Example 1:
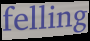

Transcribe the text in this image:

felling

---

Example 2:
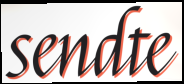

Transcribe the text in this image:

sendte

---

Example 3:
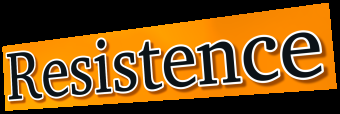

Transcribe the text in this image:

Resistence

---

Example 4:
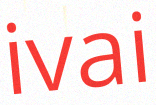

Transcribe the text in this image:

ivai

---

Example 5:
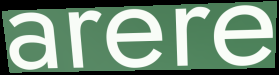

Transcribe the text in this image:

arere